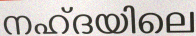
നഹ്ദയിലെ